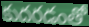
కుదరడంతో